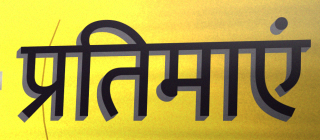
प्रतिमाएं